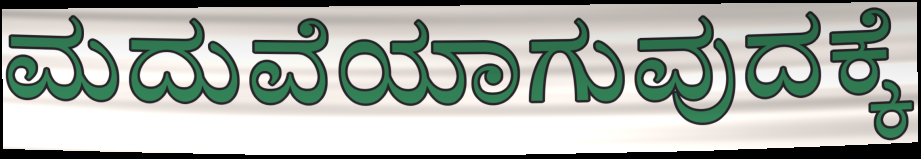
ಮದುವೆಯಾಗುವುದಕ್ಕೆ